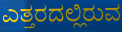
ಎತ್ತರದಲ್ಲಿರುವ